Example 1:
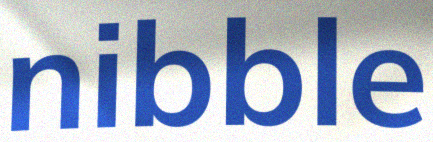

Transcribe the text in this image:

nibble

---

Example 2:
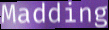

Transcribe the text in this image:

Madding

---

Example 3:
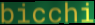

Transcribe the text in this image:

bicchi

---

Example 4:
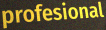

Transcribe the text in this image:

profesional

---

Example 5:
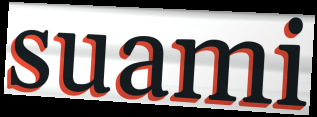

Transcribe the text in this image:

suami